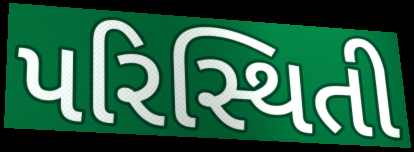
પરિસ્થિતી